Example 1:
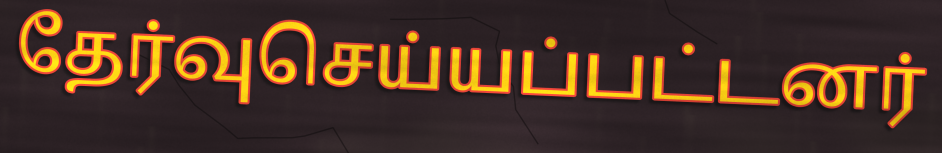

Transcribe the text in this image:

தேர்வுசெய்யப்பட்டனர்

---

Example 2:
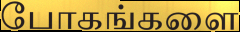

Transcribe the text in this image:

போகங்களை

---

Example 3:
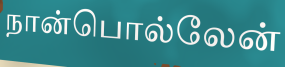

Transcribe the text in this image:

நான்பொல்லேன்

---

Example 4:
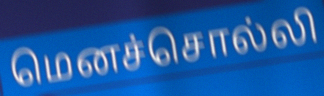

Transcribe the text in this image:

மெனச்சொல்லி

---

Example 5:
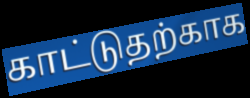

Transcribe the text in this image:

காட்டுதற்காக